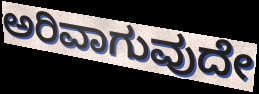
ಅರಿವಾಗುವುದೇ